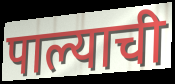
पाल्याची